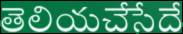
తెలియచేసేదే